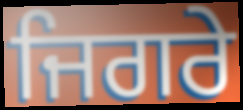
ਜਿਗਰੇ